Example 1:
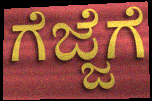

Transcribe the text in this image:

ಗೆಜ್ಜೆಗೆ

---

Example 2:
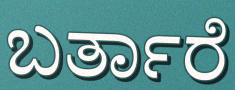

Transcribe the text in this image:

ಬರ್ತಾರೆ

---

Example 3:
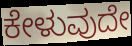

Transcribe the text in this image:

ಕೇಳುವುದೇ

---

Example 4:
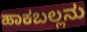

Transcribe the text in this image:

ಹಾಕಬಲ್ಲನು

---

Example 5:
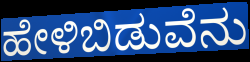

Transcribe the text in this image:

ಹೇಳಿಬಿಡುವೆನು